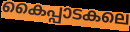
കൈപ്പാടകലെ